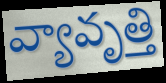
వ్యావృత్తి